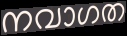
നവാഗത